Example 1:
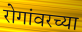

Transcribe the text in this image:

रोगांवरच्या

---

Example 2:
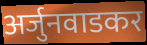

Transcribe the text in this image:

अर्जुनवाडकर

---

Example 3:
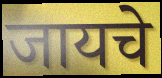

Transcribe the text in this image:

जायचे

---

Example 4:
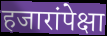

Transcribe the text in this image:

हजारांपेक्षा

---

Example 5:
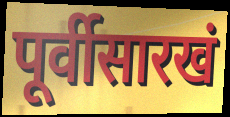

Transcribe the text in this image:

पूर्वीसारखं